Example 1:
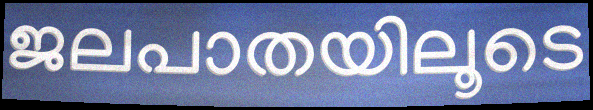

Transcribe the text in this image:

ജലപാതയിലൂടെ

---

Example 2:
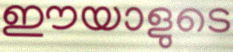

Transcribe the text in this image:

ഈയാളുടെ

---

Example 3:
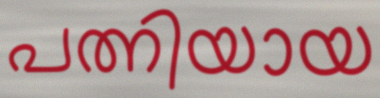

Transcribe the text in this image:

പത്നിയായ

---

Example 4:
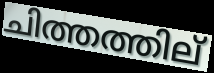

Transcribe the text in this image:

ചിത്തത്തില്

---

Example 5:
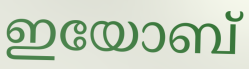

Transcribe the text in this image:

ഇയോബ്